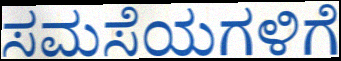
ಸಮಸೆಯಗಳಿಗೆ